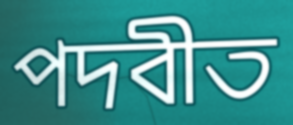
পদবীত